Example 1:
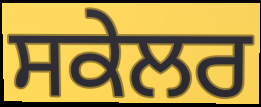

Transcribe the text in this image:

ਸਕੇਲਰ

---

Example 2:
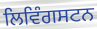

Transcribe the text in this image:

ਲਿਵਿੰਗਸਟਨ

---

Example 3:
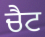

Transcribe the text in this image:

ਚੈਟ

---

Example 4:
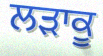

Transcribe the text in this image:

ਲੜਾਕੂ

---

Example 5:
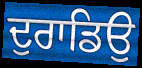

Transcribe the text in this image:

ਦੁਰਾਡਿਉ